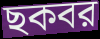
ছকবর